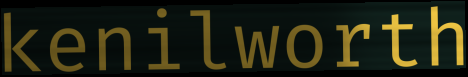
kenilworth